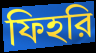
ফিহরি